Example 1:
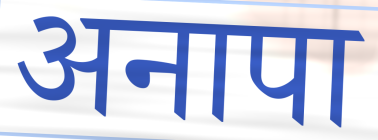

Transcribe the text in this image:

अनापा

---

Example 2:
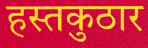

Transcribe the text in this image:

हस्तकुठार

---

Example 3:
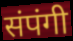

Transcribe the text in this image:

संपंगी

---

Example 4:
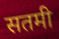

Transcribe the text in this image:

सतमी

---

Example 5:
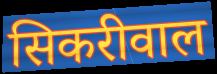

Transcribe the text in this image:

सिकरीवाल